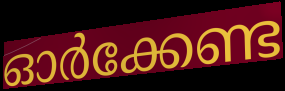
ഓർക്കേണ്ട